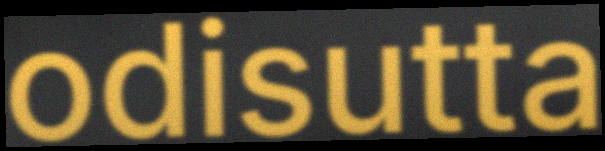
odisutta